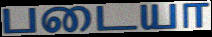
படையா